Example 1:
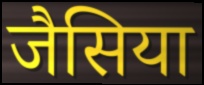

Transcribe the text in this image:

जैसिया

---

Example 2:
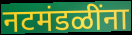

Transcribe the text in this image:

नटमंडळींना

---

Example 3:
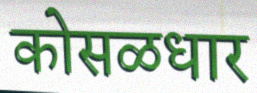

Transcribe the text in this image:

कोसळधार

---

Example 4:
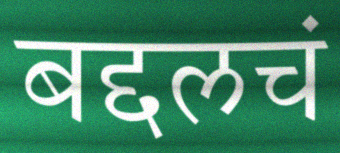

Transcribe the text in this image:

बद्दलचं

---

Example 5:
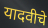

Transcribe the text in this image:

यादवीचे